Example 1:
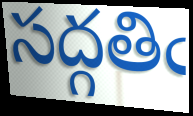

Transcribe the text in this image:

సద్గతిఁ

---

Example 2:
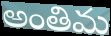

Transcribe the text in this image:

అంతిమ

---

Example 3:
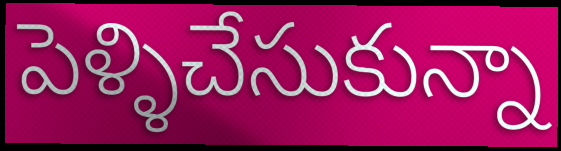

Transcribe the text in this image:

పెళ్ళిచేసుకున్నా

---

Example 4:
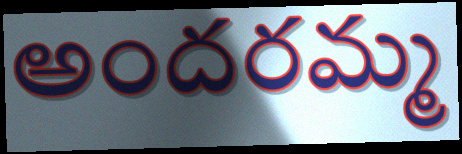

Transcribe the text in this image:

అందరమ్మ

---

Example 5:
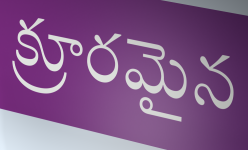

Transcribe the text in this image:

క్రూరమైన